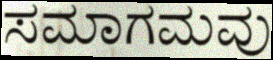
ಸಮಾಗಮವು